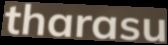
tharasu